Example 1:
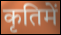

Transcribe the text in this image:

कृतिमें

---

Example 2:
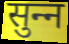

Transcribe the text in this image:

सुन्‍न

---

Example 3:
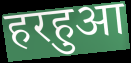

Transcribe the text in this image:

हरहुआ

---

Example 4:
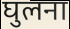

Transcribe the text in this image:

घुलना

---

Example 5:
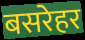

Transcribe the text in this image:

बसरेहर